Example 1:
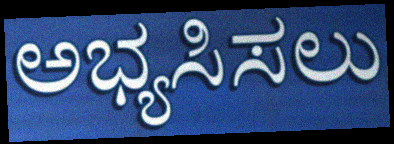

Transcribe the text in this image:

ಅಭ್ಯಸಿಸಲು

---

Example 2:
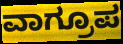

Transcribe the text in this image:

ವಾಗ್ರೂಪ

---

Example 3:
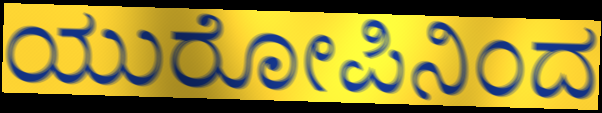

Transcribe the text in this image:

ಯುರೋಪಿನಿಂದ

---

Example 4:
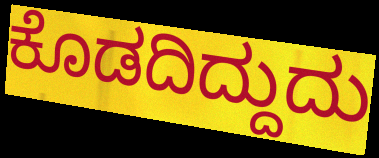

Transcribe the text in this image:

ಕೊಡದಿದ್ದುದು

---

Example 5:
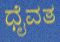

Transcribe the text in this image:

ಧೈವತ